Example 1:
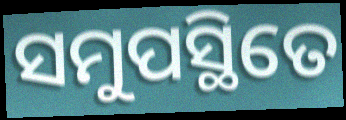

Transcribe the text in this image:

ସମୁପସ୍ଥିତେ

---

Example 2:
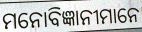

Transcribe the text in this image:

ମନୋବିଜ୍ଞାନୀମାନେ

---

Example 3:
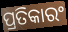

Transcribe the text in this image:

ପ୍ରତିକାରଂ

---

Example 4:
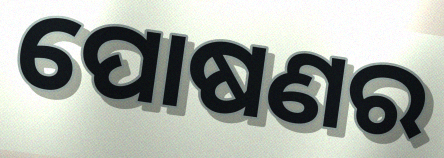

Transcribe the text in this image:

ପୋଷଣର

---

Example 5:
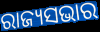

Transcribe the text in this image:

ରାଜ୍ୟସଭାର